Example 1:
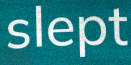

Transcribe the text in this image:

slept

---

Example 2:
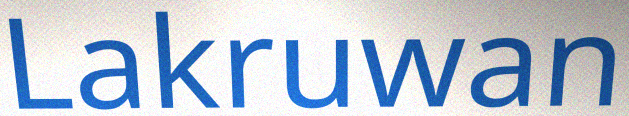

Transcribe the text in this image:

Lakruwan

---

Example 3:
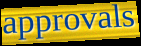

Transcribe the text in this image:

approvals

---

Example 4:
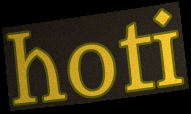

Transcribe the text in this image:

hoti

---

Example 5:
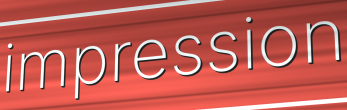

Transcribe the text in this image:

impression